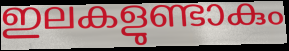
ഇലകളുണ്ടാകും